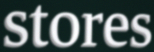
stores